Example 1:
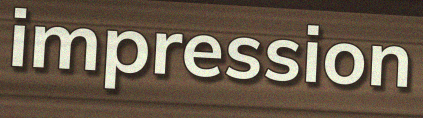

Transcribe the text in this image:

impression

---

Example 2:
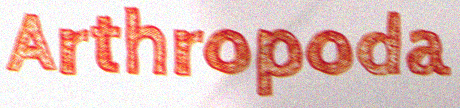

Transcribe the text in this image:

Arthropoda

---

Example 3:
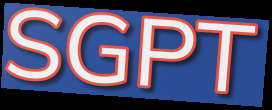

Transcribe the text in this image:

SGPT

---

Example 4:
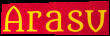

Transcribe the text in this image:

Arasu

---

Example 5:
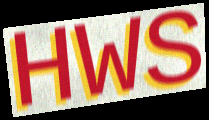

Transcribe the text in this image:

HWS